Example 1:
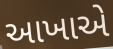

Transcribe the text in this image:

આખાએ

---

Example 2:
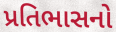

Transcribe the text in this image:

પ્રતિભાસનો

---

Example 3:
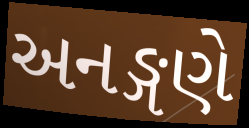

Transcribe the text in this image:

અનઙ્ગણે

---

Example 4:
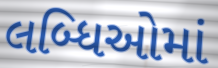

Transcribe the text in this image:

લબ્ધિઓમાં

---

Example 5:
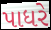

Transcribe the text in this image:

પાધરે